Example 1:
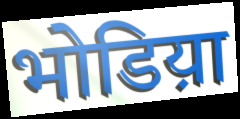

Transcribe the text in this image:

भोडिय़ा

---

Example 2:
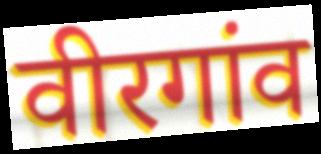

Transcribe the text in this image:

वीरगांव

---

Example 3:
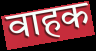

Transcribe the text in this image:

वाहक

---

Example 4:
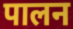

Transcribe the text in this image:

पालन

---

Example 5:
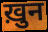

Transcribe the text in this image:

ख़ुन